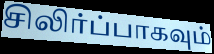
சிலிர்ப்பாகவும்